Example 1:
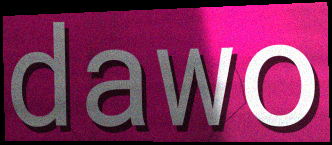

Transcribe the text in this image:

dawo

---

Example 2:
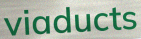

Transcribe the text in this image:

viaducts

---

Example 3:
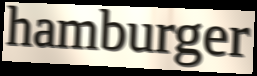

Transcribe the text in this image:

hamburger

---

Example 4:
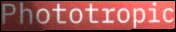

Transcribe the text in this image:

Phototropic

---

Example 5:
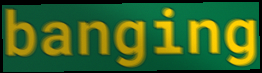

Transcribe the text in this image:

banging